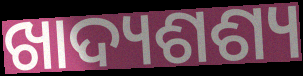
ଖାଦ୍ୟଶଶ୍ୟ